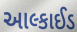
આલ્કાઈડ